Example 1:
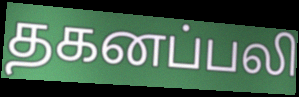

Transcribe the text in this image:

தகனப்பலி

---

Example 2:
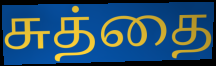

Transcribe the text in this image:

சுத்தை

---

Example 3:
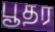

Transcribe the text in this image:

பூதர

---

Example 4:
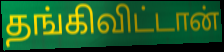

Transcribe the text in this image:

தங்கிவிட்டான்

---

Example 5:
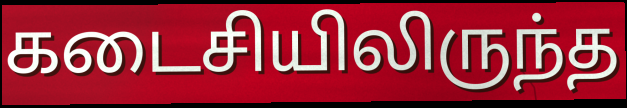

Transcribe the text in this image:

கடைசியிலிருந்த